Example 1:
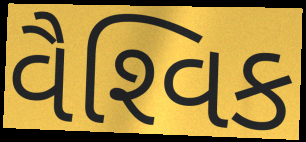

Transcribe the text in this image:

વૈશ્‍વિક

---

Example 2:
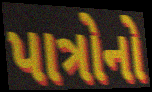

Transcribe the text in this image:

પાત્રોનો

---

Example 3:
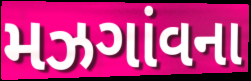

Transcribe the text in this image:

મઝગાંવના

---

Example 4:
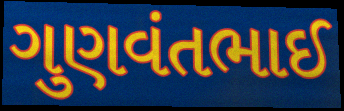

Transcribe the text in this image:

ગુણવંતભાઈ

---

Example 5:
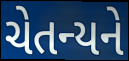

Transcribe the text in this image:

ચેતન્યને